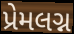
પ્રેમલગ્ન